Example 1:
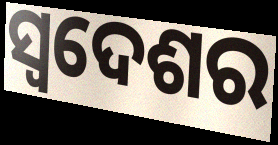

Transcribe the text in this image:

ସ୍ଵଦେଶର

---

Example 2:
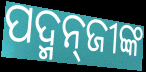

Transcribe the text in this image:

ପଦ୍ମନ୍‌ଜୀଙ୍କ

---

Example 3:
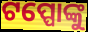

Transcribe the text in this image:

ଟପ୍ପୋଙ୍କୁ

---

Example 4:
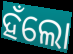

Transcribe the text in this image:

ହଁଲୋ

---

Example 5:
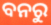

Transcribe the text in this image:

ବନରୁ